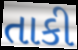
તાકી